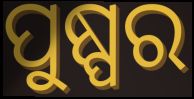
ପୁଷ୍ପର